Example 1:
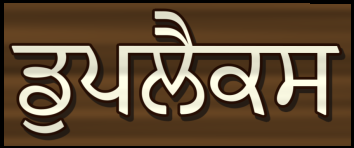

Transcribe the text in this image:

ਡੁਪਲੈਕਸ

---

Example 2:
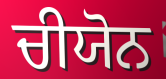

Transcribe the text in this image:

ਚੀਯੋਨ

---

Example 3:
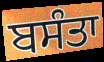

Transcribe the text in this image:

ਬਸੰਤਾ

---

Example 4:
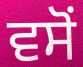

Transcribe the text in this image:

ਵਸੋਂ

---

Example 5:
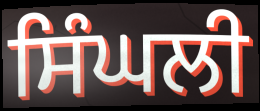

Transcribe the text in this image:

ਸਿੰਘਲੀ